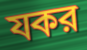
যকর